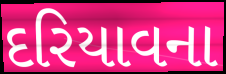
દરિયાવના